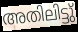
അതിലിട്ടു്